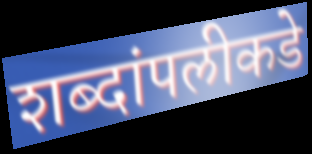
शब्दांपलीकडे